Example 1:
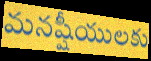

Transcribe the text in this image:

మనష్షీయులకు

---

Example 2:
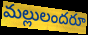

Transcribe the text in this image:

మల్లులందరూ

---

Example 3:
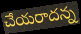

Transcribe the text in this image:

చేయరాదన్న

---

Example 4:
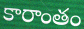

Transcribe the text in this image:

కారాంతం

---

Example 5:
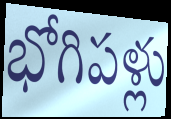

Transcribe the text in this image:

భోగిపళ్లు